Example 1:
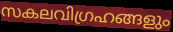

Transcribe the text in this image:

സകലവിഗ്രഹങ്ങളും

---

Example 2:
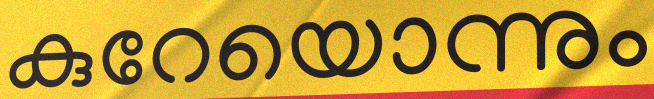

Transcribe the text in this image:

കുറേയൊന്നും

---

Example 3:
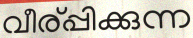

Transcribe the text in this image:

വീര്പ്പിക്കുന്ന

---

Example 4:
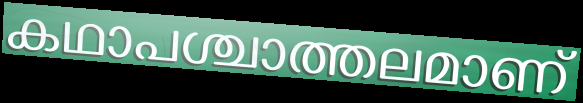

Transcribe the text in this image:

കഥാപശ്ചാത്തലമാണ്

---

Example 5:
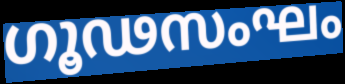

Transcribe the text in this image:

ഗൂഢസംഘം